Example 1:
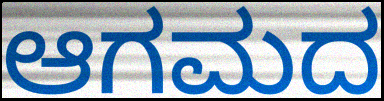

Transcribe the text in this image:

ಆಗಮದ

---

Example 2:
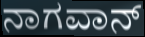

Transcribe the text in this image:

ನಾಗವಾನ್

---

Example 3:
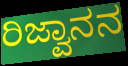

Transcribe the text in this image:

ರಿಜ್ವಾನನ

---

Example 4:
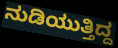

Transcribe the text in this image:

ನುಡಿಯುತ್ತಿದ್ದ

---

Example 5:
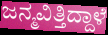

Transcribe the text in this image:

ಜನ್ಮವಿತ್ತಿದ್ದಾಳೆ